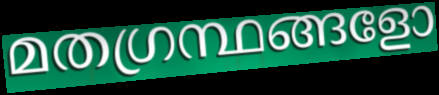
മതഗ്രന്ഥങ്ങളോ